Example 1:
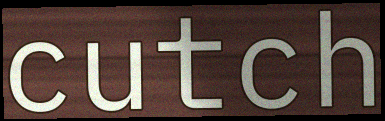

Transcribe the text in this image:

cutch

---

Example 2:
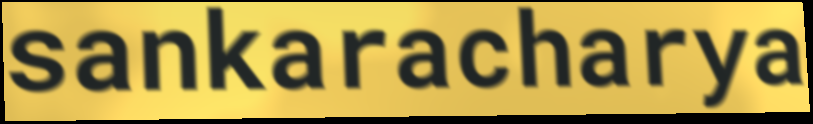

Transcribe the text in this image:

sankaracharya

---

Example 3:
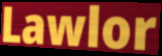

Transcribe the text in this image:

Lawlor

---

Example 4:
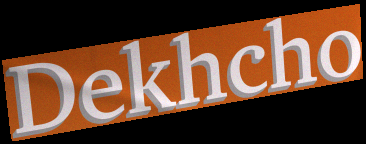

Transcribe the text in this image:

Dekhcho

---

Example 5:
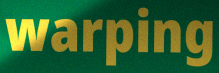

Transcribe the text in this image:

warping